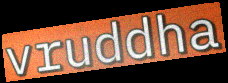
vruddha